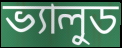
ভ্যালুড